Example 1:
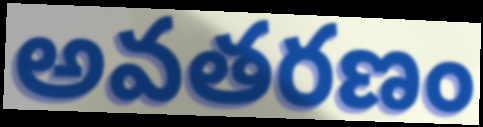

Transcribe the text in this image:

అవతరణం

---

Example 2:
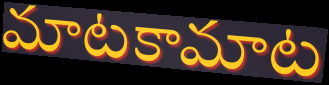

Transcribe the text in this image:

మాటకామాట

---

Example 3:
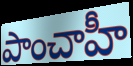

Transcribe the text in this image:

పాంచాహీ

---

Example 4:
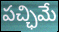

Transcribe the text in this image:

పచ్ఛిమే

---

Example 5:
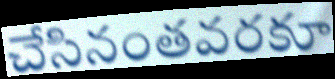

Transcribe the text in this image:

చేసినంతవరకూ